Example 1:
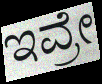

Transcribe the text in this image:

ಇವ್ರೇ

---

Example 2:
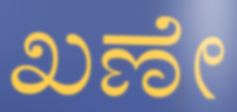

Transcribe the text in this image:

ಖಣೇ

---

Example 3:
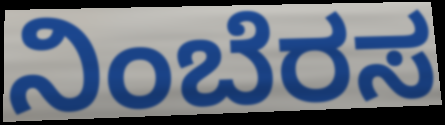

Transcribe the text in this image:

ನಿಂಬೆರಸ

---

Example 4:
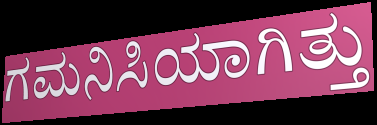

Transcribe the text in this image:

ಗಮನಿಸಿಯಾಗಿತ್ತು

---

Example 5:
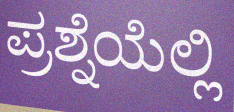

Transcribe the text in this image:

ಪ್ರಶ್ನೆಯೆಲ್ಲಿ